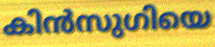
കിൻസുഗിയെ